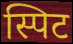
स्पिट